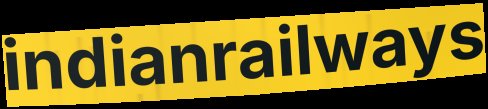
indianrailways